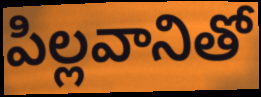
పిల్లవానితో